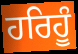
ਹਰਿਹੂੰ